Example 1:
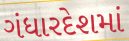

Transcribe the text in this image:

ગંધારદેશમાં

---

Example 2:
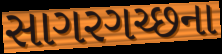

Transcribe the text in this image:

સાગરગચ્છના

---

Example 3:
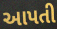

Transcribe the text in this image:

આપતી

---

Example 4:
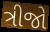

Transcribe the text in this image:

ત્રીજો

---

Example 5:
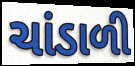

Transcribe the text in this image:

ચાંડાળી